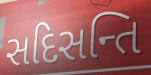
સદિસન્તિ